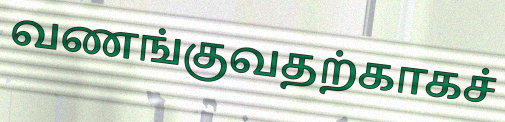
வணங்குவதற்காகச்